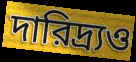
দারিদ্র্যও